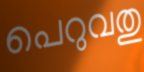
പെറുവതു